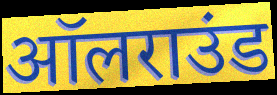
ऑलराउंड